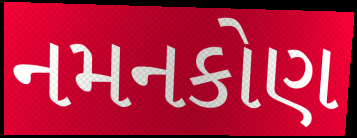
નમનકોણ